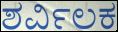
ಶರ್ವಿಲಕ